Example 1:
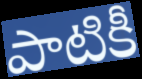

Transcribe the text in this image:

పాటికీ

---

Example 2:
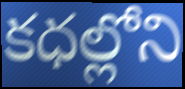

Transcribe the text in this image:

కధల్లోని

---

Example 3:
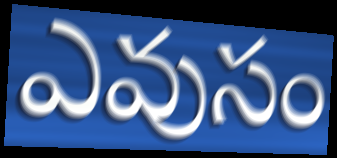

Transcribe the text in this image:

ఎవుసం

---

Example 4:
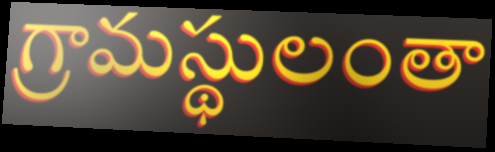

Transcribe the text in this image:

గ్రామస్థులంతా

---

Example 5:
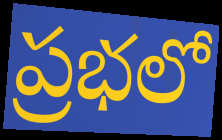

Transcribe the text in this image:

ప్రభలో